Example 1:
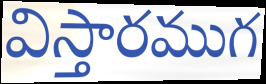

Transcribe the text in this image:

విస్తారముగ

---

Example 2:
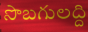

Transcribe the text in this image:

సొబగులద్ది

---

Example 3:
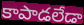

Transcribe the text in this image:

కాపాడలేడా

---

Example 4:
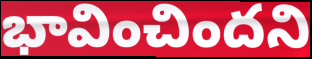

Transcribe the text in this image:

భావించిందని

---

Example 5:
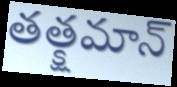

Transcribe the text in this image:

తత్క్షమాన్